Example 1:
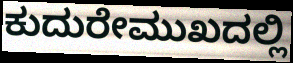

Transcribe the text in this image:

ಕುದುರೇಮುಖದಲ್ಲಿ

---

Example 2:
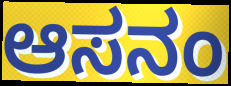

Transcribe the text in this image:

ಆಸನಂ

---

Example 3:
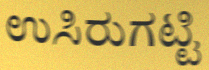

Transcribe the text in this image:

ಉಸಿರುಗಟ್ಟಿ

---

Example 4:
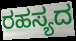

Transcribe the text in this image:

ರಹಸ್ಯದ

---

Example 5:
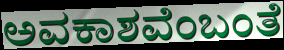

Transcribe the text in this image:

ಅವಕಾಶವೆಂಬಂತೆ